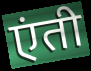
एंती